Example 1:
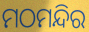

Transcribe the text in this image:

ମଠମନ୍ଦିର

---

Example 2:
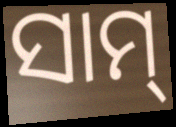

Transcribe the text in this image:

ସାମ୍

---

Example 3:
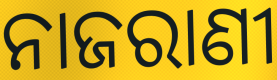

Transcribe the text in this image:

ନାଜରାଣୀ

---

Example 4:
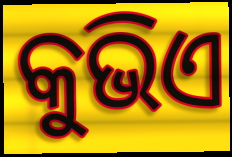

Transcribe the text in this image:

କୁଭିଏ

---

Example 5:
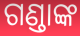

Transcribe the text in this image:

ଗଣ୍ଡାଙ୍କ